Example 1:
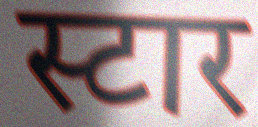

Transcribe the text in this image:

स्टार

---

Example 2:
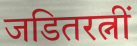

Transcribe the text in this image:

जडितरत्नीं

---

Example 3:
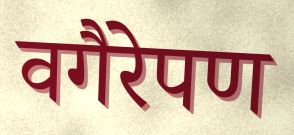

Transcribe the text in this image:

वगैरेपण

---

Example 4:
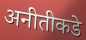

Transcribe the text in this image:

अनीतीकडे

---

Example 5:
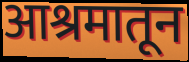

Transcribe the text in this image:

आश्रमातून